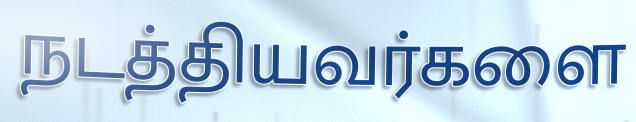
நடத்தியவர்களை